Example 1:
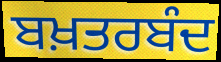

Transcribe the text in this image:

ਬਖ਼ਤਰਬੰਦ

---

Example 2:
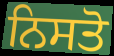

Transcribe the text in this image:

ਨਿਸਤੋ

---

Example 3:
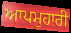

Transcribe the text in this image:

ਆਪਮੁਹਾਰੀ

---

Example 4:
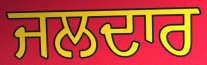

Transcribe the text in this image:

ਜਲਦਾਰ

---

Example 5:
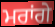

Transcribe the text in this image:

ਮਰਾਂਗੇ